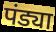
पंड्या